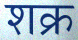
शक्र